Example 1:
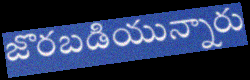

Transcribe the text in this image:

జొరబడియున్నారు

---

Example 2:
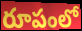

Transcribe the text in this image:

రూపంలో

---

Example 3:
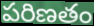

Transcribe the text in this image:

పరిణతం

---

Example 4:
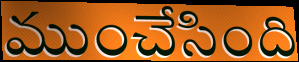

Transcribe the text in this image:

ముంచేసింది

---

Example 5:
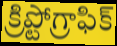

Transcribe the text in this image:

క్రిప్టోగ్రాఫిక్